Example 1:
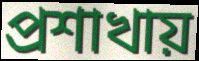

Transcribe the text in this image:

প্রশাখায়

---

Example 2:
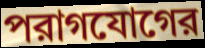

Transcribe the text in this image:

পরাগযোগের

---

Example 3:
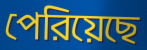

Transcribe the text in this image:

পেরিয়েছে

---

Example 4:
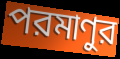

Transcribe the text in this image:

পরমাণুর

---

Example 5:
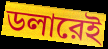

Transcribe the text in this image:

ডলারেই